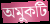
অমুকটি